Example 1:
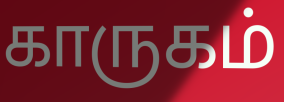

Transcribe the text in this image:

காருகம்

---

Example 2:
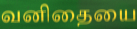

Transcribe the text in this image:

வனிதையை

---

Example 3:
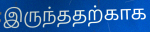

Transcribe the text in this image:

இருந்ததற்காக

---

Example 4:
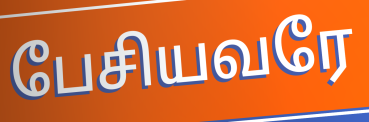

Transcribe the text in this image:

பேசியவரே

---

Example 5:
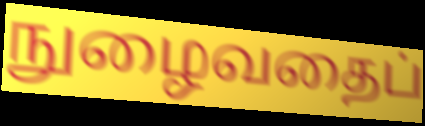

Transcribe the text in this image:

நுழைவதைப்